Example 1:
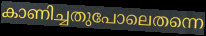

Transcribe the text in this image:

കാണിച്ചതുപോലെതന്നെ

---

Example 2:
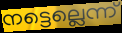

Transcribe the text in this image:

നട്ടെല്ലെന്ന്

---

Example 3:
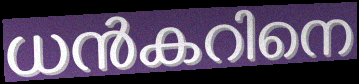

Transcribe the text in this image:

ധൻകറിനെ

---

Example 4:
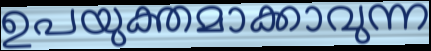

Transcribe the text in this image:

ഉപയുക്തമാക്കാവുന്ന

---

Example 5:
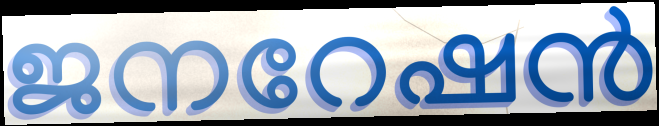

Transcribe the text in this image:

ജനറേഷൻ